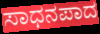
ಸಾಧನಪಾದ